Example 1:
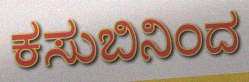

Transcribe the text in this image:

ಕಸುಬಿನಿಂದ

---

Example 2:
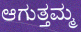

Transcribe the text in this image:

ಆಗುತ್ತಮ್ಮ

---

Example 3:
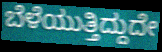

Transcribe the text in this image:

ಬೆಳೆಯುತ್ತಿದ್ದುದೇ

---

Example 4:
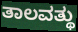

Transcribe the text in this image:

ತಾಲವತ್ಥು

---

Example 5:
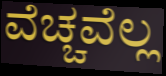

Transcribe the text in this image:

ವೆಚ್ಚವೆಲ್ಲ